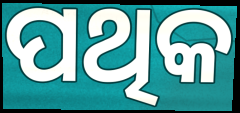
ପଥିକ